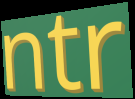
ntr